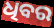
ଧିବର